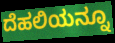
ದೆಹಲಿಯನ್ನೂ